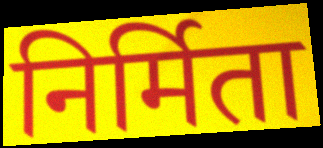
निर्मिता